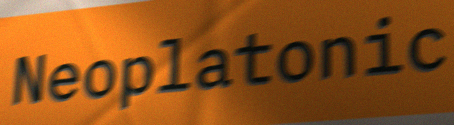
Neoplatonic